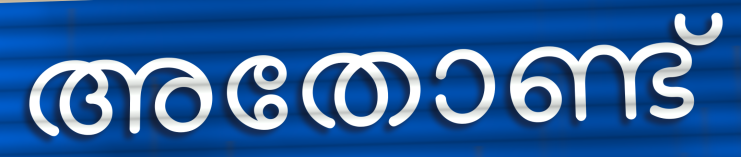
അതോണ്ട്